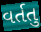
વર્તતુ